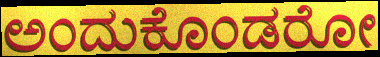
ಅಂದುಕೊಂಡರೋ